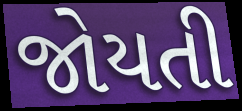
જોયતી